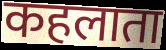
कहलाता